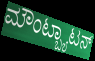
ಮೌಂಟ್ಬ್ಯಾಟನ್